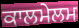
ਕਾਲਮੇਲਮ